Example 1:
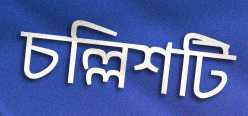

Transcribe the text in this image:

চল্লিশটি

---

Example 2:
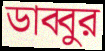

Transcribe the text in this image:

ডাব্বুর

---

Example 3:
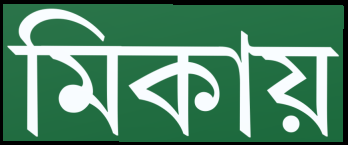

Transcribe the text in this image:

মিকায়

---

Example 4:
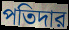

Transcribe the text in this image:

পতিদার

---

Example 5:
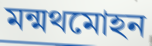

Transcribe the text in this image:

মন্মথমোহন